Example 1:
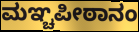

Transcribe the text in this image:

ಮಞ್ಚಪೀಠಾನಂ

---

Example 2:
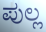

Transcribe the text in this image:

ಪುಲ್ಲ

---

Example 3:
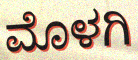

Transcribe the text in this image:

ಮೊಳಗಿ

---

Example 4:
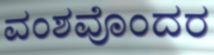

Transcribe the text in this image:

ವಂಶವೊಂದರ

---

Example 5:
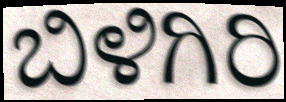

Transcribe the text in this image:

ಬಿಳಿಗಿರಿ